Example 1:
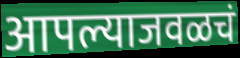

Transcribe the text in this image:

आपल्याजवळचं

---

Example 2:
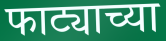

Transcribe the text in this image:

फाट्याच्या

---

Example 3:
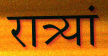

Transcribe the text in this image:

रात्र्यां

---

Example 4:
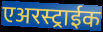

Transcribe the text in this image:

एअरस्ट्राईक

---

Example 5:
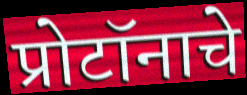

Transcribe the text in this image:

प्रोटॉनाचे